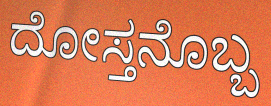
ದೋಸ್ತನೊಬ್ಬ